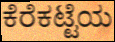
ಕೆರೆಕಟ್ಟೆಯ